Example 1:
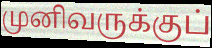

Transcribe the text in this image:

முனிவருக்குப்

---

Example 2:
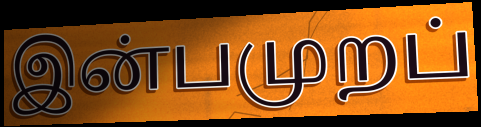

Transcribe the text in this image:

இன்பமுறப்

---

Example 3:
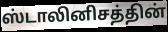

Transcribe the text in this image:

ஸ்டாலினிசத்தின்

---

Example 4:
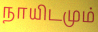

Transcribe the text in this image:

நாயிடமும்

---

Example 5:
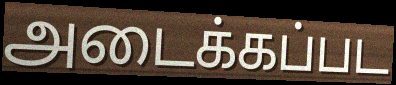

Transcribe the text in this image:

அடைக்கப்பட